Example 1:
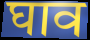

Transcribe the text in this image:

घाव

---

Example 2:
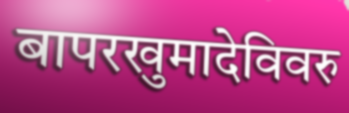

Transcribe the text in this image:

बापरखुमादेविवरु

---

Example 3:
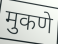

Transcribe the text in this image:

मुकणे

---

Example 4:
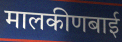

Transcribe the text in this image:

मालकीणबाई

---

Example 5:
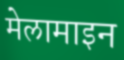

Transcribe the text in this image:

मेलामाइन